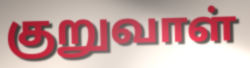
குறுவாள்